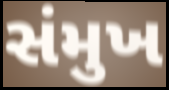
સંમુખ